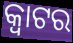
କ୍ୱାଟର